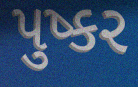
પુષ્કર